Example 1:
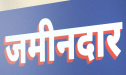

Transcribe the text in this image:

जमीनदार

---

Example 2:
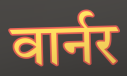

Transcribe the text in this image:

वार्नर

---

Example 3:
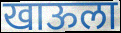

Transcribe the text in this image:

खाऊला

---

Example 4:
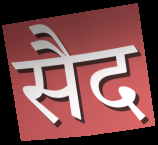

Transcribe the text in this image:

सैद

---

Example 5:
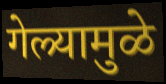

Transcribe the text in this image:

गेल्यामुळे